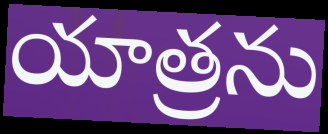
యాత్రను